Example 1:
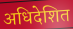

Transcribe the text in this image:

अधिदेशित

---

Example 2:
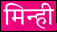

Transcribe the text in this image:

मिन्ही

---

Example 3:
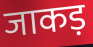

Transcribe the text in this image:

जाकड़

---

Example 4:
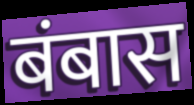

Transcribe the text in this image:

बंबास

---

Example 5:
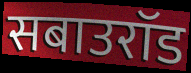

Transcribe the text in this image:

सबाउरॉड